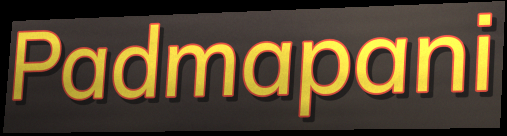
Padmapani